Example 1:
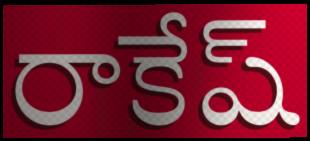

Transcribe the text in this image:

రాకేష్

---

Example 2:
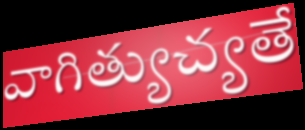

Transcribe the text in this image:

వాగిత్యుచ్యతే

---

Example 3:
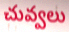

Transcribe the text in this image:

చువ్వలు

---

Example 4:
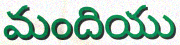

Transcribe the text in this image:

మందియు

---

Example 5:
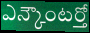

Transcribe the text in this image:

ఎన్కౌంటర్తో